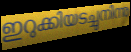
ഇറുക്കിയടച്ചുനിന്നു